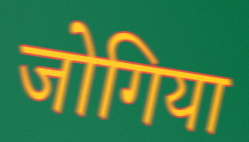
जोगिया